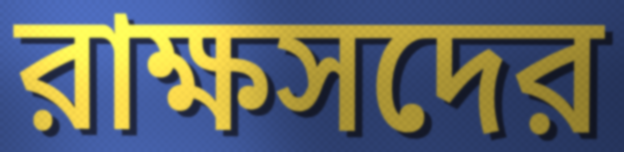
রাক্ষসদের